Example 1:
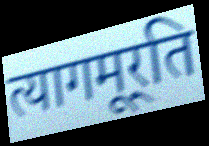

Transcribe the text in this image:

त्यागमूर्ति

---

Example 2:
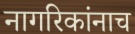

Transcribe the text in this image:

नागरिकांनाच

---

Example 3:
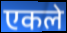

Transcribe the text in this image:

एकले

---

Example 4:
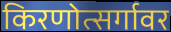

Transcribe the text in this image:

किरणोत्सर्गावर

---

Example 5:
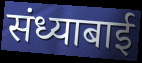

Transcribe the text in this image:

संध्याबाई